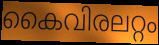
കൈവിരലറ്റം